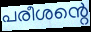
പരീശന്റെ